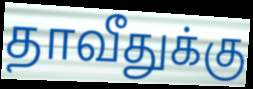
தாவீதுக்கு